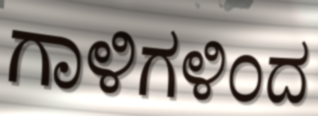
ಗಾಳಿಗಳಿಂದ